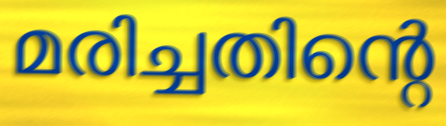
മരിച്ചതിന്റെ